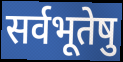
सर्वभूतेषु